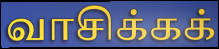
வாசிக்கக்